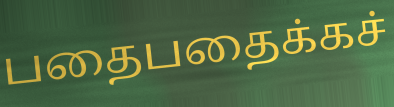
பதைபதைக்கச்